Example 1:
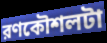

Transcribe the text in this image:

রণকৌশলটা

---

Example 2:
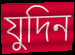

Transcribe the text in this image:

যুদিন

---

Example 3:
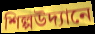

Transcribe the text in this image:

শিল্পউদ্যানে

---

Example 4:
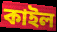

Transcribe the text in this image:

কাইল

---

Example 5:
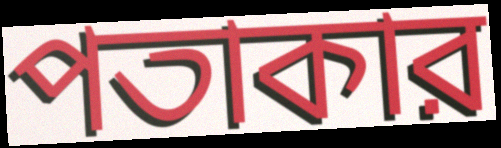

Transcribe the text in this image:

পতাকার